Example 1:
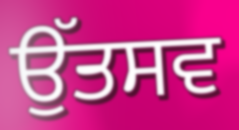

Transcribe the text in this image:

ਉੱਤਸਵ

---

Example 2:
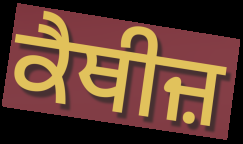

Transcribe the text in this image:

ਕੈਥੀਜ਼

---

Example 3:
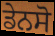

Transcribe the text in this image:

ਡੇਨਸੋ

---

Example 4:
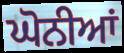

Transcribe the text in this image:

ਘੋਨੀਆਂ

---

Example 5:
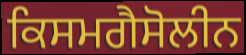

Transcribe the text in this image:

ਕਿਸਮਗੈਸੋਲੀਨ